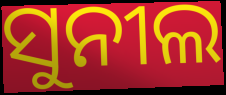
ସୁନୀଲ